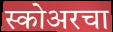
स्कोअरचा